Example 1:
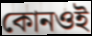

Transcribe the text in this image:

কোনওই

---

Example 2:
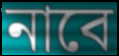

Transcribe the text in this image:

নাবে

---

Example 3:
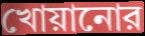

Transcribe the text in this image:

খোয়ানোর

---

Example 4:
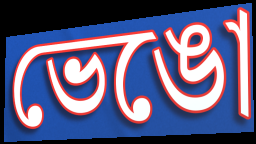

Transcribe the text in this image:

ভেঙো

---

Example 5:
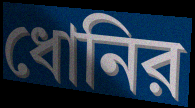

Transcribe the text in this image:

ধোনির